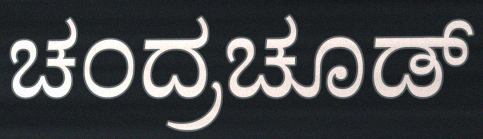
ಚಂದ್ರಚೂಡ್